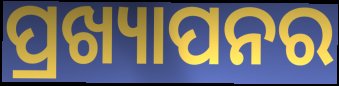
ପ୍ରଖ୍ୟାପନର